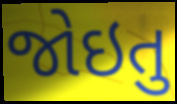
જોઇતુ